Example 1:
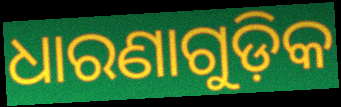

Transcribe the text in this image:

ଧାରଣାଗୁଡ଼ିକ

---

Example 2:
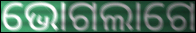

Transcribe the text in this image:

ଭୋଗଲାଗେ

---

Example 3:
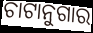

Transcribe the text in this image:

ଚାଟାନୁଗାର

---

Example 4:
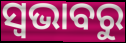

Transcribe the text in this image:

ସ୍ଵଭାବରୁ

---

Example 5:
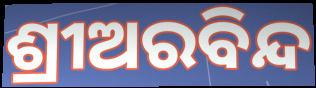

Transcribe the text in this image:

ଶ୍ରୀଅରବିନ୍ଦ